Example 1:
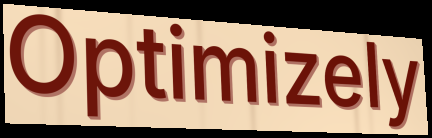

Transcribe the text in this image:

Optimizely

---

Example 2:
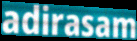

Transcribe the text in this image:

adirasam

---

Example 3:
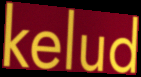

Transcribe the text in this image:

kelud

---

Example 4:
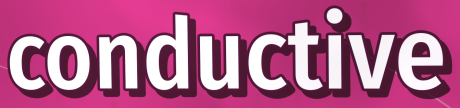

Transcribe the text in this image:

conductive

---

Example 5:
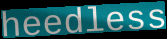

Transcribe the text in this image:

heedless